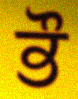
ਭੌ